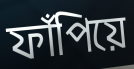
ফাঁপিয়ে